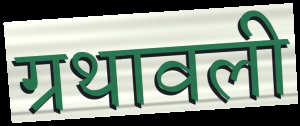
ग्रथावली